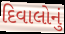
દિવાલોનું